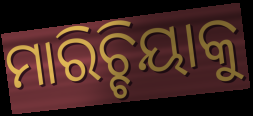
ମାରିଚ୍ଚିୟାକୁ